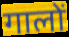
गालों